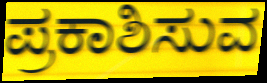
ಪ್ರಕಾಶಿಸುವ